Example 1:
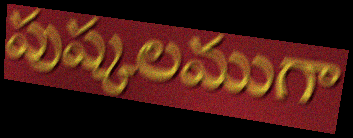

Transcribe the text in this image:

పుష్కలముగా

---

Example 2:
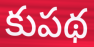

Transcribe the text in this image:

కుపథ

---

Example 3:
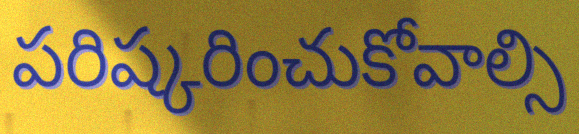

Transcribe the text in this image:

పరిష్కరించుకోవాల్సి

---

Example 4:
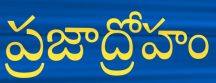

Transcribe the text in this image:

ప్రజాద్రోహం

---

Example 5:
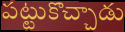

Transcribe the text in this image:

పట్టుకొచ్చాడు